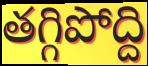
తగ్గిపోద్ది